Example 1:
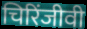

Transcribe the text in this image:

चिरिंजीवी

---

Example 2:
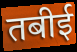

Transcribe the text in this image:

तबीई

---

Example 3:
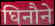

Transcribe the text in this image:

घिनौने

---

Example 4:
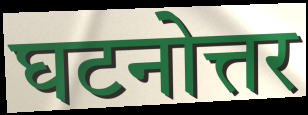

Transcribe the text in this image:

घटनोत्तर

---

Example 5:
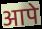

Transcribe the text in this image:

आपे